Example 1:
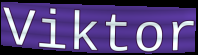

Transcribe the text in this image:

Viktor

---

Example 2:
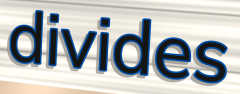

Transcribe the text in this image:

divides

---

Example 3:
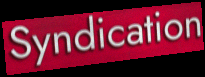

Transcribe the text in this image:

Syndication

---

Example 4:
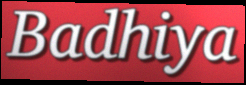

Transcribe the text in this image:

Badhiya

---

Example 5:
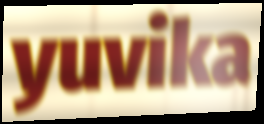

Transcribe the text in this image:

yuvika